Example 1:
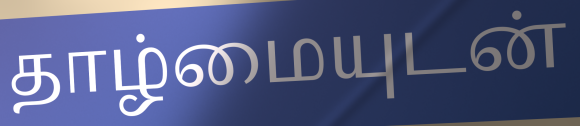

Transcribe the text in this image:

தாழ்மையுடன்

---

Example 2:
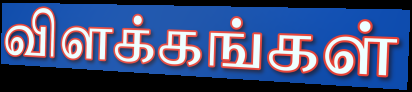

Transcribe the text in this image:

விளக்கங்கள்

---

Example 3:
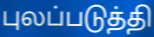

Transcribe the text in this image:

புலப்படுத்தி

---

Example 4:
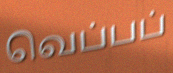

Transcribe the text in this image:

வெப்பப்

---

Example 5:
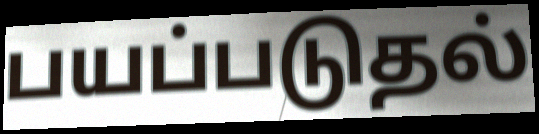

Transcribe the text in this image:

பயப்படுதல்